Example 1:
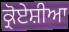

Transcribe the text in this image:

ਕ੍ਰੋਏਸ਼ੀਆ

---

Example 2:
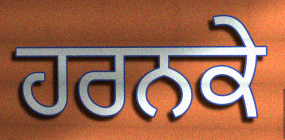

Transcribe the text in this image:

ਹਰਨਕੇ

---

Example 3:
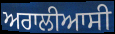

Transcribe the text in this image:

ਅਰਾਲੀਆਸੀ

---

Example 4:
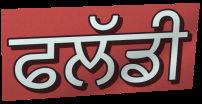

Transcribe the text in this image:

ਫਲੱਡੀ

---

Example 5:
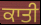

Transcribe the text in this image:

ਕਾਤੀ